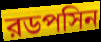
রডপসিন